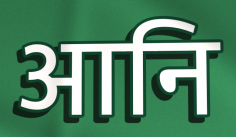
आनि